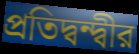
প্রতিদ্বন্দ্বীর